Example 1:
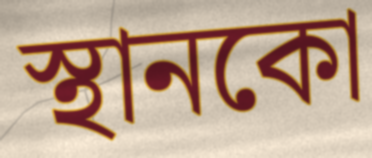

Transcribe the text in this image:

স্থানকো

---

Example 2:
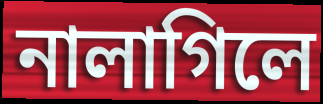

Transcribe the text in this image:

নালাগিলে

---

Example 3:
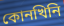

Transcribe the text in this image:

কোনখিনি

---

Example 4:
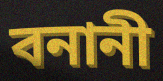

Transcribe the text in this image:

বনানী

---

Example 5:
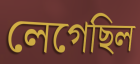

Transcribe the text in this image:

লেগেছিল